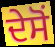
ਦੇਸੋਂ